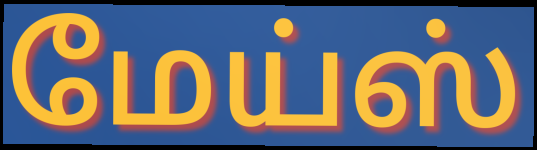
மேய்ஸ்